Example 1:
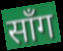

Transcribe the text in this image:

साँग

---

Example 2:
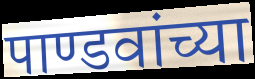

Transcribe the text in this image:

पाण्डवांच्या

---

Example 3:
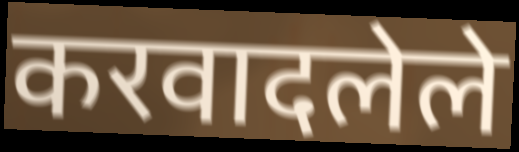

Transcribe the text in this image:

करवादलेले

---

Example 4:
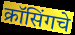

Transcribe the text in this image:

क्रॉसिंगचे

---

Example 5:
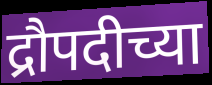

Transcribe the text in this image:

द्रौपदीच्या